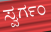
ಸ್ವರ್ಗಂ